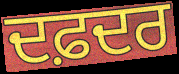
ਦਫ਼ਦਰ